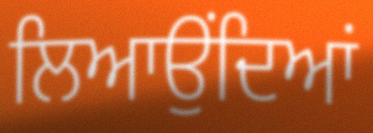
ਲਿਆਉਂਦਿਆਂ